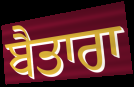
ਬੈਤਾਰਾ